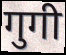
गुगी